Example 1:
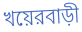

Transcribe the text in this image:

খয়েরবাড়ী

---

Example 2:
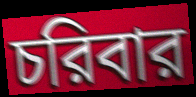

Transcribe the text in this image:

চরিবার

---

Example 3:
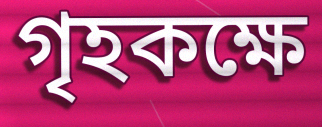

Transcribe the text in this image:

গৃহকক্ষে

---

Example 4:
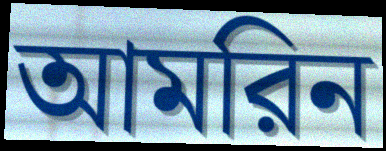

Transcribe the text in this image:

আমরিন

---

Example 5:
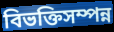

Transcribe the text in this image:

বিভক্তিসম্পন্ন